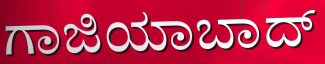
ಗಾಜಿಯಾಬಾದ್